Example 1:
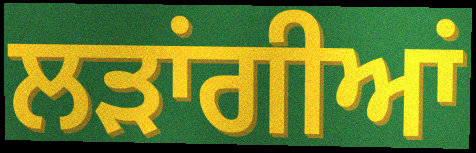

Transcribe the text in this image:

ਲੜਾਂਗੀਆਂ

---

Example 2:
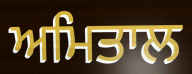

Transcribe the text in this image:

ਅਮਿਤਾਲ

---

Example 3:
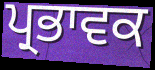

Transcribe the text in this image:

ਪ੍ਰਭਾਵਕ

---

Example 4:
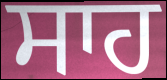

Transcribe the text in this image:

ਸਾਹ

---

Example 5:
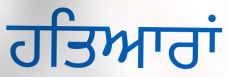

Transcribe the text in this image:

ਹਤਿਆਰਾਂ